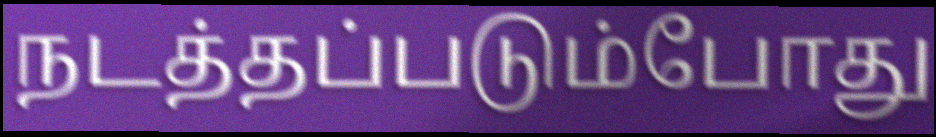
நடத்தப்படும்போது